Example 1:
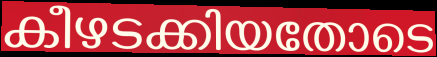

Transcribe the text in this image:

കീഴടക്കിയതോടെ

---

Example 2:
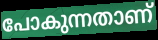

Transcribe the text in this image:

പോകുന്നതാണ്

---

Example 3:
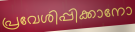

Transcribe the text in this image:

പ്രവേശിപ്പിക്കാനോ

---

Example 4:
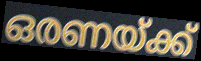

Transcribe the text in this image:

ഒരണയ്ക്ക്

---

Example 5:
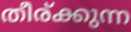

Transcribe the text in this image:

തീര്ക്കുന്ന